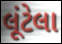
લૂંટેલા